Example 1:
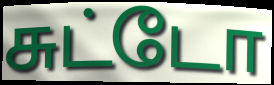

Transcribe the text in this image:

சுட்டோ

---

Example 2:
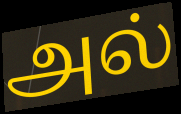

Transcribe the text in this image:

அல்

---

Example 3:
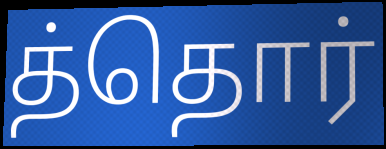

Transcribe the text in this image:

த்தொர்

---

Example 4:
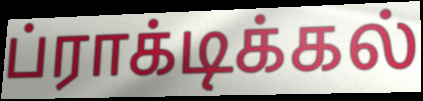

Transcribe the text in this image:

ப்ராக்டிக்கல்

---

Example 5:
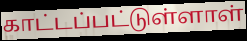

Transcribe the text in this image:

காட்டப்பட்டுள்ளாள்